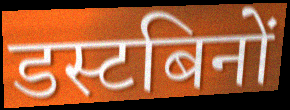
डस्टबिनों